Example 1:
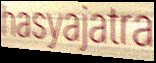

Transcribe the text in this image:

hasyajatra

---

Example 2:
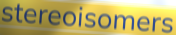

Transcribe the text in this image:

stereoisomers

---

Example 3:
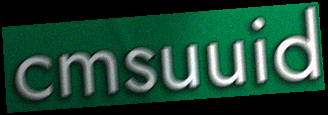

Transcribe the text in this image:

cmsuuid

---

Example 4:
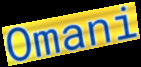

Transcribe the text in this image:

Omani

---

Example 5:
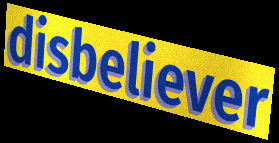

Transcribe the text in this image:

disbeliever